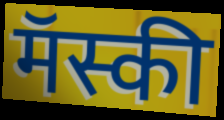
मॅस्की